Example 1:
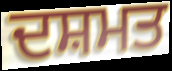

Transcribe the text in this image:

ਦਸ਼ਮਤ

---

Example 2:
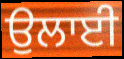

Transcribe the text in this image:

ਉਲਾਈ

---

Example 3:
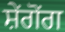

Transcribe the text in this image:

ਸ਼ੇਂਗੋਂਗ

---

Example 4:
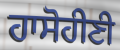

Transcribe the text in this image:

ਹਾਸੋਹੀਣੀ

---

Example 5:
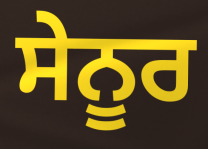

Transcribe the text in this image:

ਸੇਨੂਰ